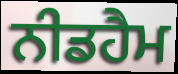
ਨੀਡਹੈਮ